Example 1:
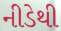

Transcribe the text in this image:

નીડેથી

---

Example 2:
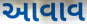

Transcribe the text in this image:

આવાવ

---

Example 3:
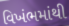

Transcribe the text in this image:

વિખંભમાંથી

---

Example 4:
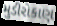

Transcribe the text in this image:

મુડીરોકાણ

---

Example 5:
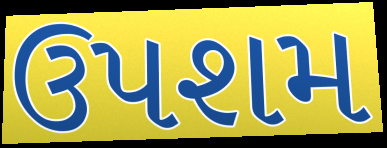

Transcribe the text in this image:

ઉપશમ